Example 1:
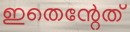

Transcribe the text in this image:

ഇതെന്റേത്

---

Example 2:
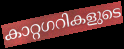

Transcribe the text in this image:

കാറ്റഗറികളുടെ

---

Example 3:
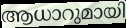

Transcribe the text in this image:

ആധാറുമായി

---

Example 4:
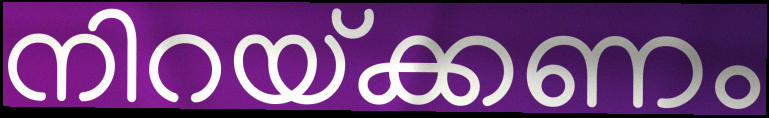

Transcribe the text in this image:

നിറയ്‌ക്കണം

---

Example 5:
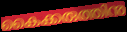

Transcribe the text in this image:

കൈക്കരുത്തിനു